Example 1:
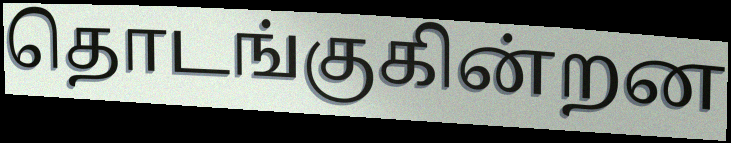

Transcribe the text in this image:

தொடங்குகின்றன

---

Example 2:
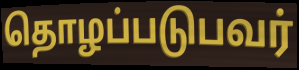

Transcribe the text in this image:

தொழப்படுபவர்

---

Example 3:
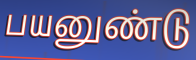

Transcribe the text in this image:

பயனுண்டு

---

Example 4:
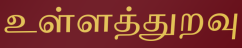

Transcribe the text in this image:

உள்ளத்துறவு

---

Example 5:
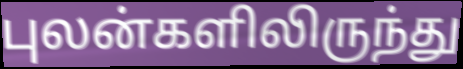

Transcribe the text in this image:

புலன்களிலிருந்து